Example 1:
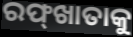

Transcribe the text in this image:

ରଫ୍‌ଖାତାକୁ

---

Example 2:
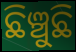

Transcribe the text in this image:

ଛିଞ୍ଚୁଛି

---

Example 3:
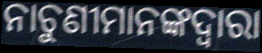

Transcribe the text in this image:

ନାଚୁଣୀମାନଙ୍କଦ୍ୱାରା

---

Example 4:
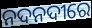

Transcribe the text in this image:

ନଦନଦୀରେ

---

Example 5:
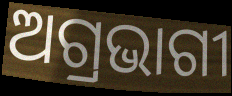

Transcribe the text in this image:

ଅଗ୍ରଭାଗୀ